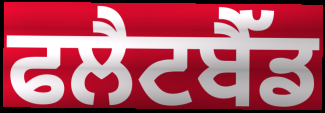
ਫਲੈਟਬੈੱਡ